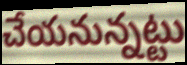
చేయనున్నట్టు